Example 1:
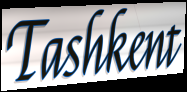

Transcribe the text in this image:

Tashkent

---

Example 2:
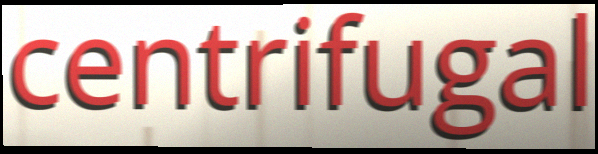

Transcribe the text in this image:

centrifugal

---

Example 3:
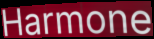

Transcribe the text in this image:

Harmone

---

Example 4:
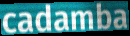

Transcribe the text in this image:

cadamba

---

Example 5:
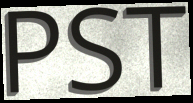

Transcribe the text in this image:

PST